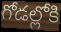
గోడల్లోకి